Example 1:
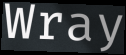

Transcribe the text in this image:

Wray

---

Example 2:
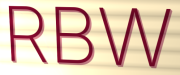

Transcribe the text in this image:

RBW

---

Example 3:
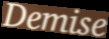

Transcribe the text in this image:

Demise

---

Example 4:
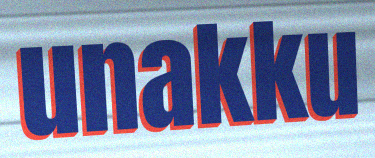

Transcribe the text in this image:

unakku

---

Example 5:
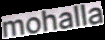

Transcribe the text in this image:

mohalla